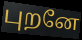
புறனே